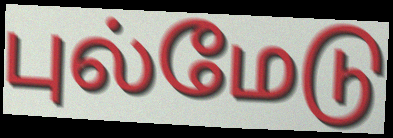
புல்மேடு